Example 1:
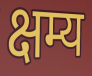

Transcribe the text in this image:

क्षम्य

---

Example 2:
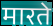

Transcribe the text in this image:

मारते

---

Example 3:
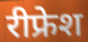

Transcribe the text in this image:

रीफ्रेश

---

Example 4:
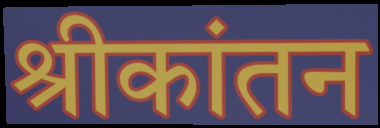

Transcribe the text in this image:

श्रीकांतन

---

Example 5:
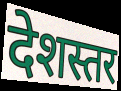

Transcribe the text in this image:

देशस्तर